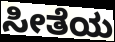
ಸೀತೆಯ